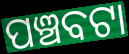
ପଞ୍ଚବଟା